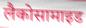
लैकोसामाइड